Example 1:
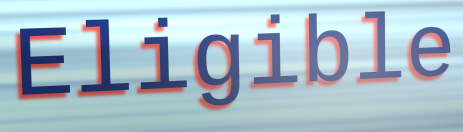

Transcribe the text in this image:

Eligible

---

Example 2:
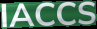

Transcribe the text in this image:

IACCS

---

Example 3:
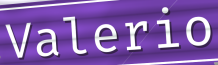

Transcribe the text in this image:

Valerio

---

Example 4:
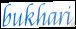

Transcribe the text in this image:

bukhari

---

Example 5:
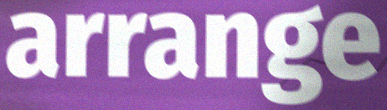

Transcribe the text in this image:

arrange